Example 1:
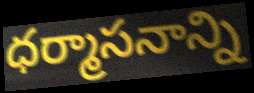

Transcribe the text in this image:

ధర్మాసనాన్ని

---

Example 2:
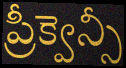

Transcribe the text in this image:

ప్రీక్వెన్సీ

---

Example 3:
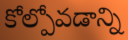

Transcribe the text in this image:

కోల్పోవడాన్ని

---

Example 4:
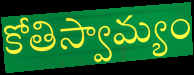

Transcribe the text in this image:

కోతిస్వామ్యం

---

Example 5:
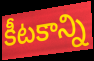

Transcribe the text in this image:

కీటకాన్ని